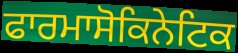
ਫਾਰਮਾਸੋਕਿਨੇਟਿਕ